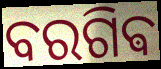
ବରଗିଵ